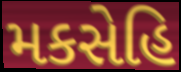
મકસેહિ